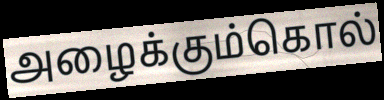
அழைக்கும்கொல்